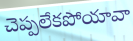
చెప్పలేకపోయావా